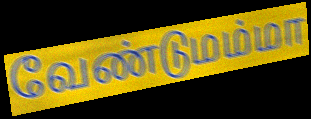
வேண்டுமம்மா